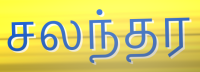
சலந்தர